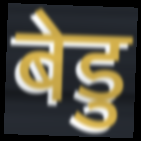
बेडु